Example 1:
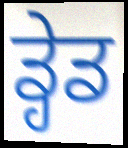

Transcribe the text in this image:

ਡ੍ਹੇਡ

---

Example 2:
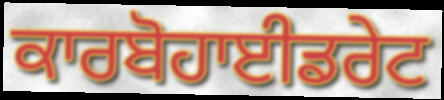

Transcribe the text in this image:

ਕਾਰਬੋਹਾਈਡਰੇਟ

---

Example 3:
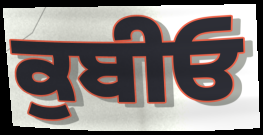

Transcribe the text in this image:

ਕੁਬੀਓ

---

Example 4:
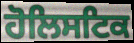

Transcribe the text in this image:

ਹੋਲਿਸਟਿਕ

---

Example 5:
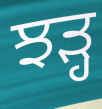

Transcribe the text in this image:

ਝੜ੍ਹ